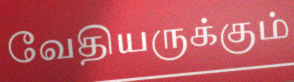
வேதியருக்கும்